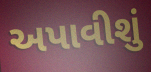
અપાવીશું